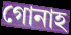
গোনাহ